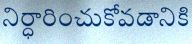
నిర్ధారించుకోవడానికి